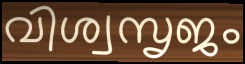
വിശ്വസൃജം